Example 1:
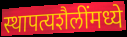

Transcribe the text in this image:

स्थापत्यशैलींमध्ये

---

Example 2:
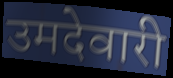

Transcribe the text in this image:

उमदेवारी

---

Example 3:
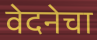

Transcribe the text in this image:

वेदनेचा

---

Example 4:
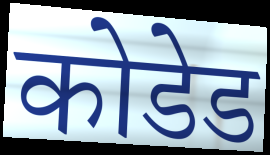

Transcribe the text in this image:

कोडेड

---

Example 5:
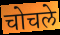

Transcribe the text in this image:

चोचले